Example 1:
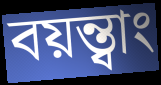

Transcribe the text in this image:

বয়ন্ত্বাং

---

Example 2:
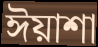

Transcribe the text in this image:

ঈয়াশা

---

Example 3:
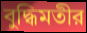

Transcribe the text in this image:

বুদ্ধিমতীর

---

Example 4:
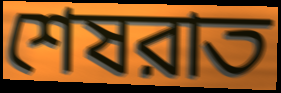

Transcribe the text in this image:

শেষরাত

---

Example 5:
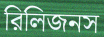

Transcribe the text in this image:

রিলিজনস